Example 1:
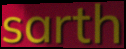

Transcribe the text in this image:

sarth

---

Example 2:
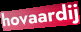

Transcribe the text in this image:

hovaardij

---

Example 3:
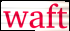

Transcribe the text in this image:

waft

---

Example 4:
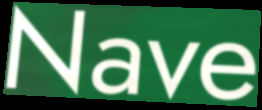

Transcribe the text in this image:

Nave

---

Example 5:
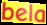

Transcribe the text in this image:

bela